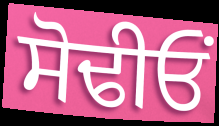
ਸੋਢੀਓਂ